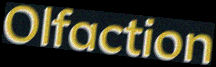
Olfaction